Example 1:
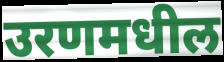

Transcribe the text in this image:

उरणमधील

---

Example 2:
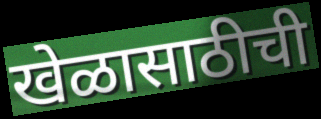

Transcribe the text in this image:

खेळासाठीची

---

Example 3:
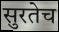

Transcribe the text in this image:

सुरतेच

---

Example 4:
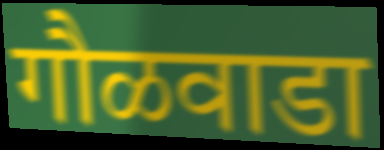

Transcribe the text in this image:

गौळवाडा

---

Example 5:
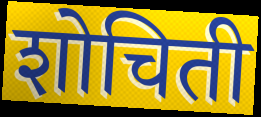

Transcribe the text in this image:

शोचिती